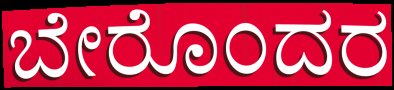
ಬೇರೊಂದರ